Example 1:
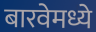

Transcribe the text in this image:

बारवेमध्ये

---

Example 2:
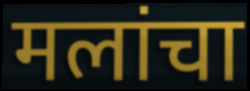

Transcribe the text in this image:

मलांचा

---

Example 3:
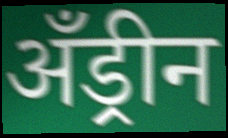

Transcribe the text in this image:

अँड्रीन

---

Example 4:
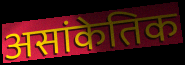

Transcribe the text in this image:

असांकेतिक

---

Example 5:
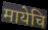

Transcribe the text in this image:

मायेचि